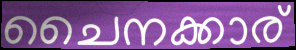
ചൈനക്കാര്